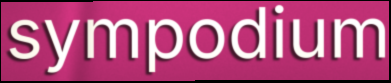
sympodium